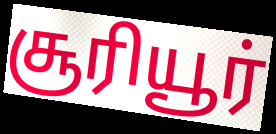
சூரியூர்